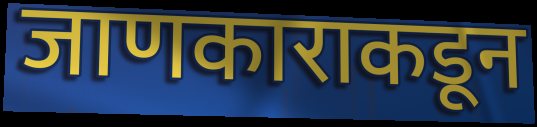
जाणकाराकडून